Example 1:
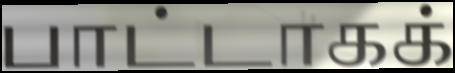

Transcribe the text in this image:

பாட்டாகக்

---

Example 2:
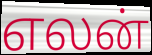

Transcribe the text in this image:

எலன்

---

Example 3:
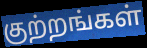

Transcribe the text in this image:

குற்றங்கள்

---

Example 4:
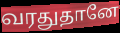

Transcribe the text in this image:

வரதுதானே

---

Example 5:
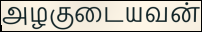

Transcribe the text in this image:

அழகுடையவன்